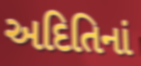
અદિતિનાં